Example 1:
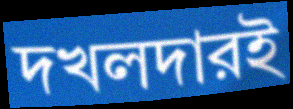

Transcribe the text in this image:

দখলদারই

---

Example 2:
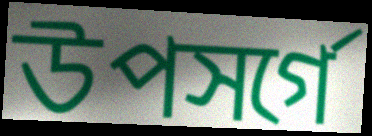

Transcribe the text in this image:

উপসর্গে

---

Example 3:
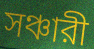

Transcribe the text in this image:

সঞ্চারী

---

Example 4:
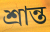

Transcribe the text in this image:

শ্রান্ত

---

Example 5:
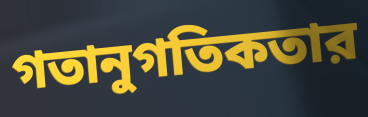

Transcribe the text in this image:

গতানুগতিকতার